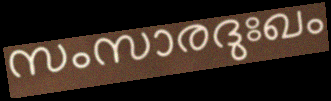
സംസാരദുഃഖം